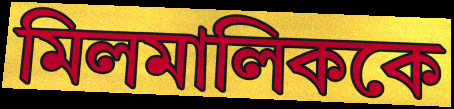
মিলমালিককে